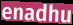
enadhu